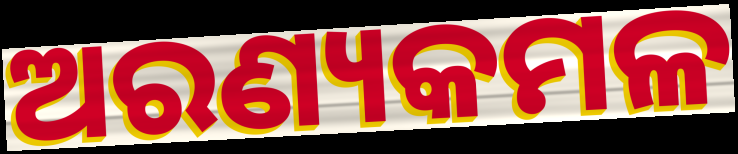
ଅରଣ୍ୟକମଳ